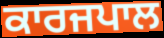
ਕਾਰਜਪਾਲ